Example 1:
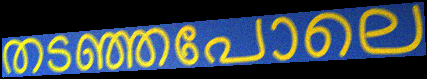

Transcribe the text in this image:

തടഞ്ഞപോലെ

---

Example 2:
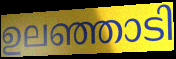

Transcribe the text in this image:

ഉലഞ്ഞാടി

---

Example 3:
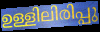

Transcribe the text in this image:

ഉള്ളിലിരിപ്പു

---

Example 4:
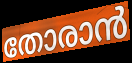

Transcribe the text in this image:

തോരാൻ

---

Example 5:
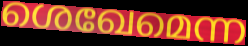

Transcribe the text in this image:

ശെഖേമെന്ന